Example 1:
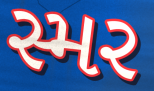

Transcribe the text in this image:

સ્મર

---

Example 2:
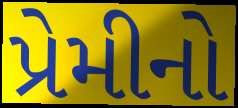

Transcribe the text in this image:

પ્રેમીનો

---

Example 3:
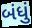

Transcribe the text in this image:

બંધું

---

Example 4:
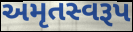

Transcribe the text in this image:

અમૃતસ્વરૂપ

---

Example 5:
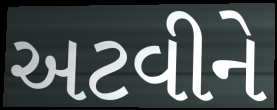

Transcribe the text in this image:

અટવીને